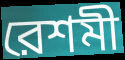
রেশমী